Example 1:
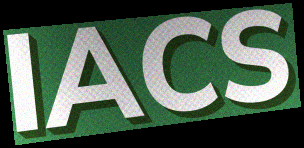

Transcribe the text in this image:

IACS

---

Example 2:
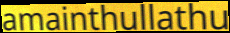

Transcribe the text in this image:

amainthullathu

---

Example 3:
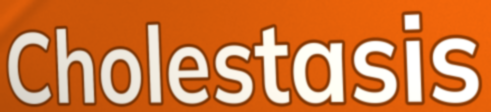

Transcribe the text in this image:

Cholestasis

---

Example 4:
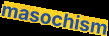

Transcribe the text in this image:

masochism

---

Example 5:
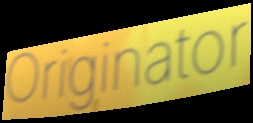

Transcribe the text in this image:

Originator